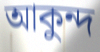
আকুন্দ